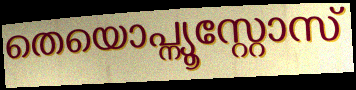
തെയൊപ്ന്യൂസ്റ്റോസ്